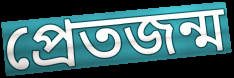
প্রেতজন্ম